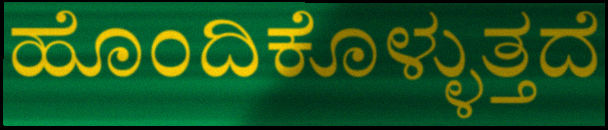
ಹೊಂದಿಕೊಳ್ಳುತ್ತದೆ